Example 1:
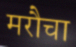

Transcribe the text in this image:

मरौचा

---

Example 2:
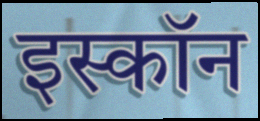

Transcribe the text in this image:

इस्‍कॉन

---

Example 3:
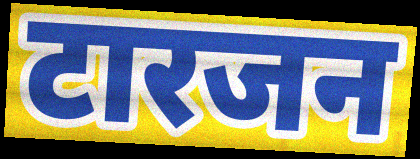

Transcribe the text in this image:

टारजन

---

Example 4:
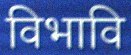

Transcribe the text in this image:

विभावि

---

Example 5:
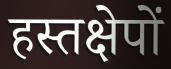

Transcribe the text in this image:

हस्तक्षेपों